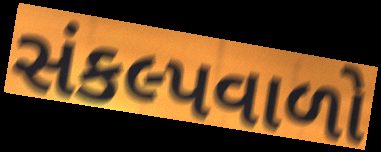
સંકલ્પવાળો